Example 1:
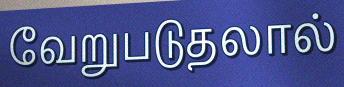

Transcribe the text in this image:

வேறுபடுதலால்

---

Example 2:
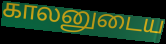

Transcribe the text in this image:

காலனுடைய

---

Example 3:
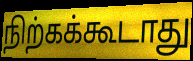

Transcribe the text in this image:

நிற்கக்கூடாது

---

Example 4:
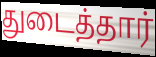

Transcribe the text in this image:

துடைத்தார்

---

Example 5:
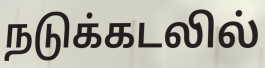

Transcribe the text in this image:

நடுக்கடலில்